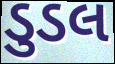
ડુડલ